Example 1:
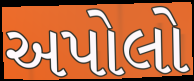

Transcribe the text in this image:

અપોલો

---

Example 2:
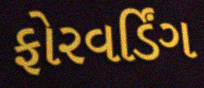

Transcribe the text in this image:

ફોરવર્ડિંગ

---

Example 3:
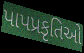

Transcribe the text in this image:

પાપપ્રકૃતિઓ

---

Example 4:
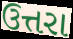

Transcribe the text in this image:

ઉત્તરા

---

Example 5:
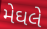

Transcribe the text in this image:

મેઘલે